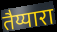
तैय्यारा